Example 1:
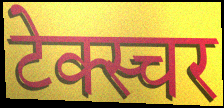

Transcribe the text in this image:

टेक्स्चर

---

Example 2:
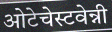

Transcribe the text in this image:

ओटेचेस्टवेन्नी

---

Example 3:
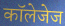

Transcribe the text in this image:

कॉलेजेज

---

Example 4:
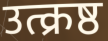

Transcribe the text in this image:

उत्क्रष्ठ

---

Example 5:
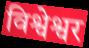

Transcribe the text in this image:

विश्वेश्वर